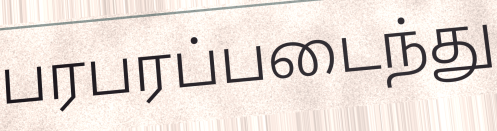
பரபரப்படைந்து